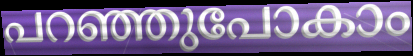
പറഞ്ഞുപോകാം